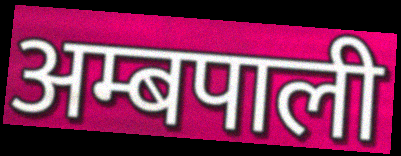
अम्बपाली